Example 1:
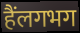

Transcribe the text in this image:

हैंलगभग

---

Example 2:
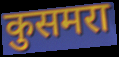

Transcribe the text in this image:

कुसमरा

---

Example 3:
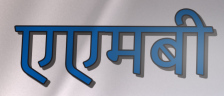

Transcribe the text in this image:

एएमबी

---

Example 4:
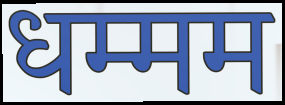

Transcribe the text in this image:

धम्मम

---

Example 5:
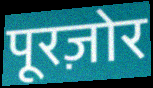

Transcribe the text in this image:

पूरज़ोर